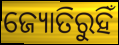
ଜ୍ୟୋତିରୁହିଁ